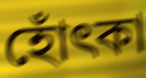
হোঁৎকা